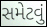
સમેટવું